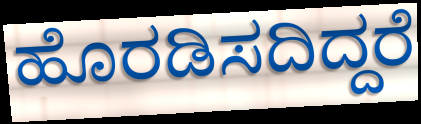
ಹೊರಡಿಸದಿದ್ದರೆ